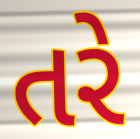
તરે